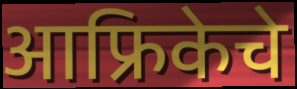
आफ्रिकेचे